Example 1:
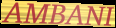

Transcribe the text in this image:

AMBANI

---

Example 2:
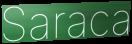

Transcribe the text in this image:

Saraca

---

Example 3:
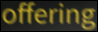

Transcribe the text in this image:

offering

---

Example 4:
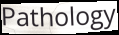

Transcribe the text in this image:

Pathology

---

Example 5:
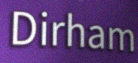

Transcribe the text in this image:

Dirham